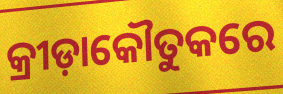
କ୍ରୀଡ଼ାକୌତୁକରେ